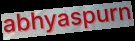
abhyaspurn